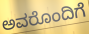
ಅವರೊಂದಿಗೆ